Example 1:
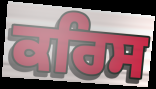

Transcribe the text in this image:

ਕਰਿਸ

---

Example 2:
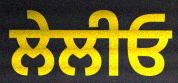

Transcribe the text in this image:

ਲੇਲੀਓ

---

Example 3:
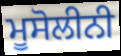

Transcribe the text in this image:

ਮੂਸੋਲੀਨੀ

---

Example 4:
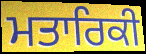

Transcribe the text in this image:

ਮਤਾਰਿਕੀ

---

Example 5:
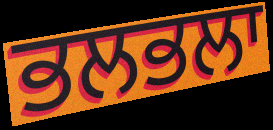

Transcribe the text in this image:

ਭਲਭਲਾ